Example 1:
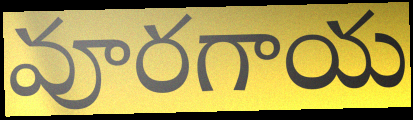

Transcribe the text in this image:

వూరగాయ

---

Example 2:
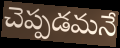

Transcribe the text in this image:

చెప్పడమనే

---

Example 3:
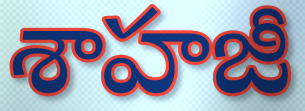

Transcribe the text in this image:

శాహజీ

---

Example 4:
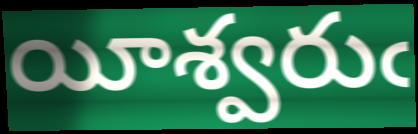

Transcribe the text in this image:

యీశ్వరుఁ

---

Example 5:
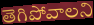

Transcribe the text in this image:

తెగిపోవాలని